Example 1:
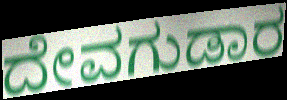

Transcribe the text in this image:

ದೇವಗುಡಾರ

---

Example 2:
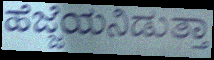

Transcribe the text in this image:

ಹೆಜ್ಜೆಯನಿಡುತ್ತಾ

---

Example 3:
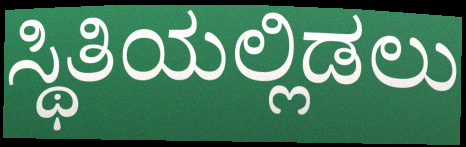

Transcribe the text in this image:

ಸ್ಥಿತಿಯಲ್ಲಿಡಲು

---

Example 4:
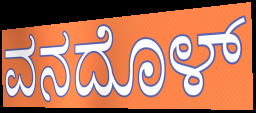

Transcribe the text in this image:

ವನದೊಳ್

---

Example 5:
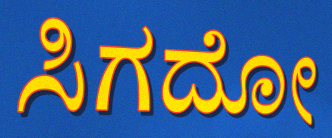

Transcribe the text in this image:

ಸಿಗದೋ